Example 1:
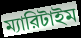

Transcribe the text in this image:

ম্যারিটাইম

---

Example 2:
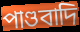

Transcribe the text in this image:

পাণ্ডবাদি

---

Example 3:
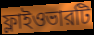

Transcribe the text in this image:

ফ্লাইওভারটি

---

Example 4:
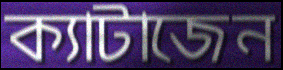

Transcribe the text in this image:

ক্যাটাজেন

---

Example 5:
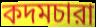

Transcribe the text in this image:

কদমচারা